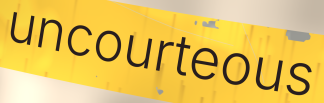
uncourteous